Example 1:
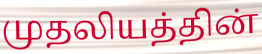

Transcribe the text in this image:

முதலியத்தின்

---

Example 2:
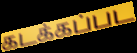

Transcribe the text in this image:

கடக்கப்பட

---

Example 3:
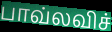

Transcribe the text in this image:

பாவ்லவிச்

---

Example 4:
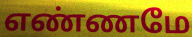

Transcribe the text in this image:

எண்ணமே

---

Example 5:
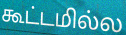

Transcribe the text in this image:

கூட்டமில்ல